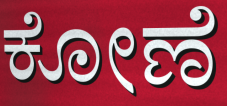
ಕೋಣೆ